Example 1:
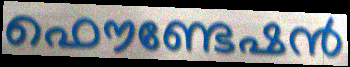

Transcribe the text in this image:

ഫൌണ്ടേഷൻ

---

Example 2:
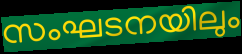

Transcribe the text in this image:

സംഘടനയിലും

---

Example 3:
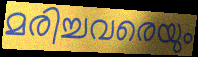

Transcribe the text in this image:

മരിച്ചവരെയും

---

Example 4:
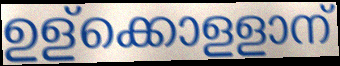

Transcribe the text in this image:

ഉള്ക്കൊളളാന്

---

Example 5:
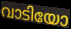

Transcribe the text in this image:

വാടിയോ